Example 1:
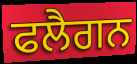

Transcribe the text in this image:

ਫਲੈਗਨ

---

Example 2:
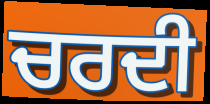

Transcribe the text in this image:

ਚਰਦੀ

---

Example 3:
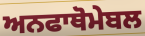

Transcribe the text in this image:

ਅਨਫਾਥੋਮੇਬਲ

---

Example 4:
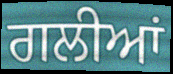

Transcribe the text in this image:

ਗਲੀਆਂ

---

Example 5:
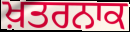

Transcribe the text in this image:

ਖ਼ਤਰਨਾਕ